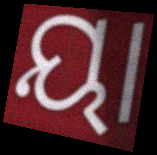
ୟା